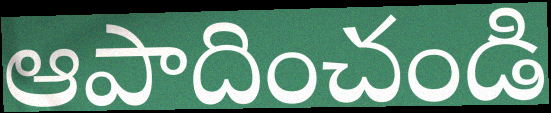
ఆపాదించండి